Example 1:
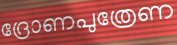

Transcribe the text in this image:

ദ്രോണപുത്രേണ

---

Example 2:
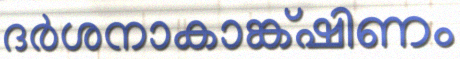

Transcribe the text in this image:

ദർശനാകാങ്ക്ഷിണം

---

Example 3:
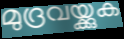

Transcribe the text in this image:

മുദ്രവയ്ക്കുക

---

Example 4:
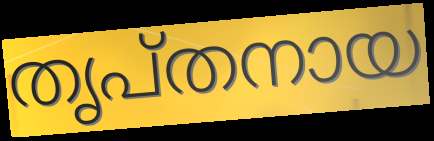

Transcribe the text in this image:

തൃപ്തനായ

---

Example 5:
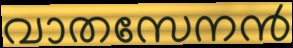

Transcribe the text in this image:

വാതസേനൻ